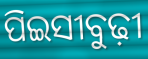
ପିଇସୀବୁଢ଼ୀ